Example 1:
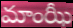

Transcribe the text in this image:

మాంఝీ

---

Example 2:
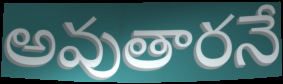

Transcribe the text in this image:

అవుతారనే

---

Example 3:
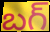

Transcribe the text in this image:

బగ్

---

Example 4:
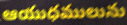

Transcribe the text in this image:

ఆయుధములును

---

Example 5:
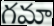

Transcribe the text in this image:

గమా